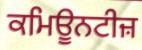
ਕਮਿਊਨਟੀਜ਼